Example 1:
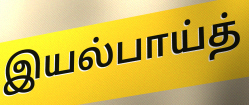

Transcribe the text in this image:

இயல்பாய்த்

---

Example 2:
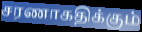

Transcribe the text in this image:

சரணாகதிக்கும்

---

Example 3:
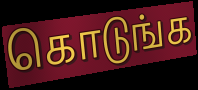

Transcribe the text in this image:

கொடுங்க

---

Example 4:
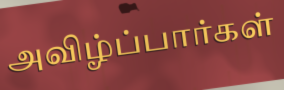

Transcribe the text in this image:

அவிழ்ப்பார்கள்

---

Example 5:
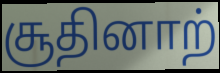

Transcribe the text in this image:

சூதினாற்